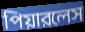
পিয়ারলেস